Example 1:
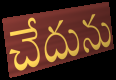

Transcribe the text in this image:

చేదును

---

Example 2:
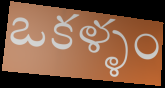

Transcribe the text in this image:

ఒకళ్ళం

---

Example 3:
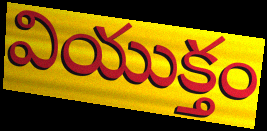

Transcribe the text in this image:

వియుక్తం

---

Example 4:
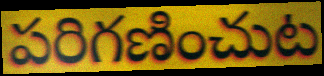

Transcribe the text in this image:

పరిగణించుట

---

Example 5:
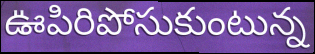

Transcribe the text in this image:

ఊపిరిపోసుకుంటున్న